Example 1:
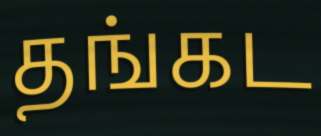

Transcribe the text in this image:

தங்கட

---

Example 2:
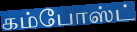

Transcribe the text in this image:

கம்போஸ்ட்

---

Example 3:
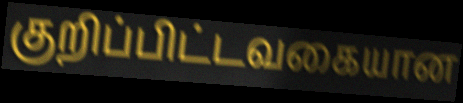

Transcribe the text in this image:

குறிப்பிட்டவகையான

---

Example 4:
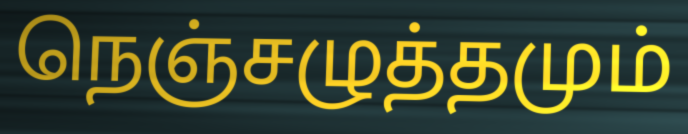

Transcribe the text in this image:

நெஞ்சழுத்தமும்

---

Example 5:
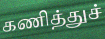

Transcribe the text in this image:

கணித்துச்